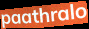
paathralo